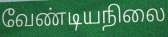
வேண்டியநிலை